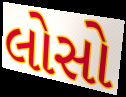
લોસો